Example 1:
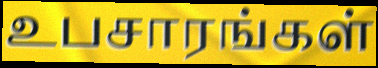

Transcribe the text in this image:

உபசாரங்கள்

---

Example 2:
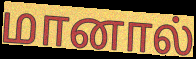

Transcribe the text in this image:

மானால்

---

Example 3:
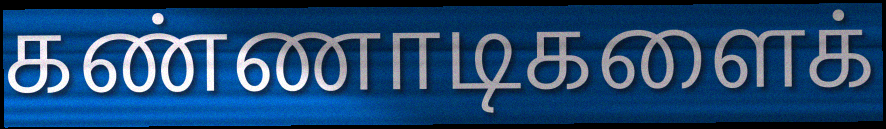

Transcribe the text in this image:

கண்ணாடிகளைக்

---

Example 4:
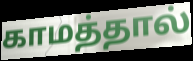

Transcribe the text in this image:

காமத்தால்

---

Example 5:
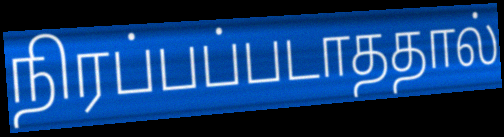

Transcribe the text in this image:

நிரப்பப்படாததால்